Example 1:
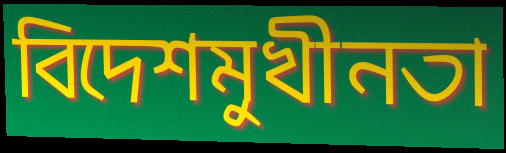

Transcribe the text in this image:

বিদেশমুখীনতা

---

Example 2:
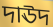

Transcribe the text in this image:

দাঊদ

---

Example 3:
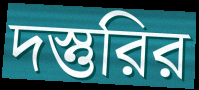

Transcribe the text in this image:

দস্তুরির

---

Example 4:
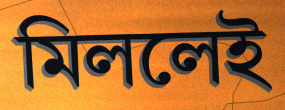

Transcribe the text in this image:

মিললেই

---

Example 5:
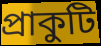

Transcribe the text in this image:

প্রাকুটি